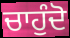
ਚਾਹੁੰਦੋ